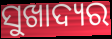
ସୁଖାଦ୍ୟର